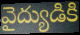
వైద్యుడికి